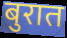
बुरात